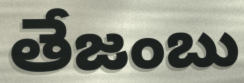
తేజంబు